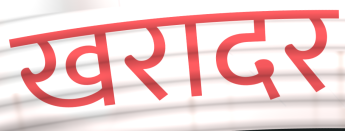
खरादर